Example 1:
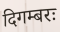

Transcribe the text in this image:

दिगम्बरः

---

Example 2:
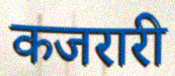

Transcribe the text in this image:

कजरारी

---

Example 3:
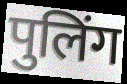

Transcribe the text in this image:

पुलिंग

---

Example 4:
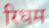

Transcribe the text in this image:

रिधम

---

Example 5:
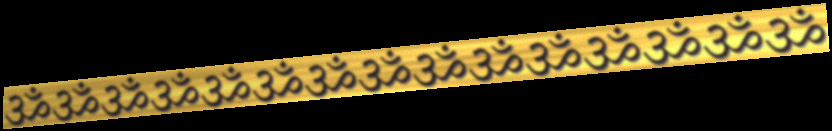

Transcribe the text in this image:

ॐॐॐॐॐॐॐॐॐॐॐॐॐॐॐ